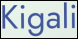
Kigali